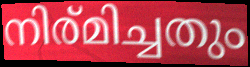
നിര്മിച്ചതും